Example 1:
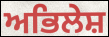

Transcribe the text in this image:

ਅਭਿਲੇਸ਼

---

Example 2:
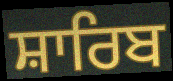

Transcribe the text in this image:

ਸ਼ਾਰਿਬ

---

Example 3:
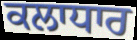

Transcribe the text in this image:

ਕਲਾਧਾਰ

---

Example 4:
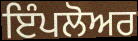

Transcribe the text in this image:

ਇੰਪਲੋਅਰ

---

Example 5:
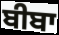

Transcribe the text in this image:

ਬੀਬਾ